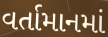
વર્તામાનમાં